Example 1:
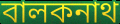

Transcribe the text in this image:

বালকনাথ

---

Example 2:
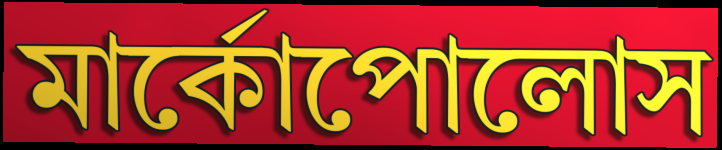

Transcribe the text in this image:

মার্কোপোলোস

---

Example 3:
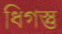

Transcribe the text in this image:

ধিগস্তু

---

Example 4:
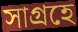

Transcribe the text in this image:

সাগ্রহে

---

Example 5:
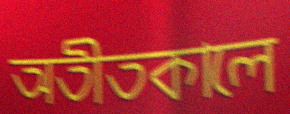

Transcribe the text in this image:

অতীতকালে